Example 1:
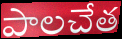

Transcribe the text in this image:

పాలచేత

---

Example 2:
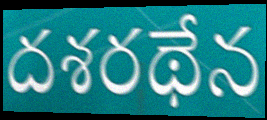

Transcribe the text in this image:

దశరథేన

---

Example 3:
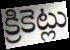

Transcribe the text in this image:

క్రికెట్లు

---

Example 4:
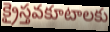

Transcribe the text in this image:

క్రైస్తవకూటాలకు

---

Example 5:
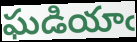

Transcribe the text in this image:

ఘడియాఁ